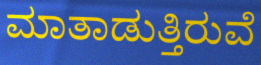
ಮಾತಾಡುತ್ತಿರುವೆ